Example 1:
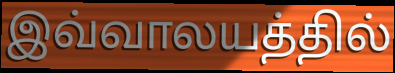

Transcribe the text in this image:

இவ்வாலயத்தில்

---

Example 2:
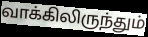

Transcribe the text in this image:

வாக்கிலிருந்தும்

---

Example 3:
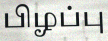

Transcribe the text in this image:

பிழப்பு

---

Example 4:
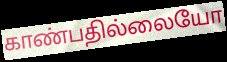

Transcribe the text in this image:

காண்பதில்லையோ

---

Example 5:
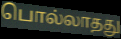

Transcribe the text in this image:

பொல்லாதது